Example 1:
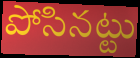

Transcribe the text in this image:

పోసినట్టు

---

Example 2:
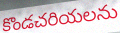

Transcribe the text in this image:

కొండచరియలను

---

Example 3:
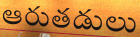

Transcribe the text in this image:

ఆరుతడులు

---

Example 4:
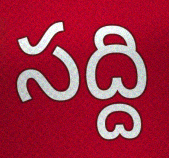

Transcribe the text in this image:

సద్ది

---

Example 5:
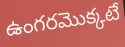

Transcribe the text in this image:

ఉంగరమొక్కటే